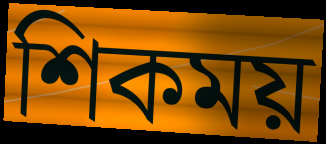
শিকময়